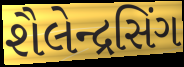
શૈલેન્દ્રસિંગ